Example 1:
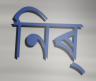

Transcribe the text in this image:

নিৰ্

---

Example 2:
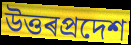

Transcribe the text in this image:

উত্তৰপ্ৰদেশ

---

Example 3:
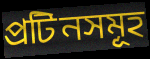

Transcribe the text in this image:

প্ৰটিনসমূহ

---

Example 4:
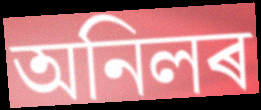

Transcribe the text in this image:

অনিলৰ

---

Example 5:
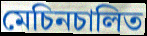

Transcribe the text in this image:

মেচিনচালিত